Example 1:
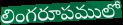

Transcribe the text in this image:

లింగరూపములో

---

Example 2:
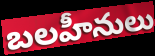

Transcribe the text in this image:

బలహీనులు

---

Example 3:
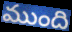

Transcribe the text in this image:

ముంది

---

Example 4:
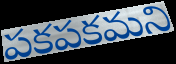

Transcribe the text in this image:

పకపకమని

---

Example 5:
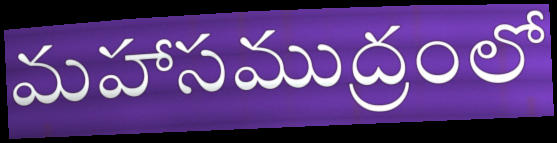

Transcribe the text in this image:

మహాసముద్రంలో